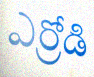
ఎర్రోడి